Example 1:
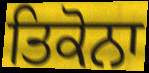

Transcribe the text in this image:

ਤਿਕੋਨਾ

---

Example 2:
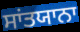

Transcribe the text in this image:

ਸਾਂਤਯਾਨਾ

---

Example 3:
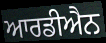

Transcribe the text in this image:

ਆਰਡੀਐਨ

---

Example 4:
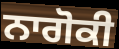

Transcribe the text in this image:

ਨਾਗੋਕੀ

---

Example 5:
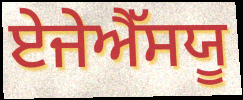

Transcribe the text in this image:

ਏਜੇਐੱਸਯੂ